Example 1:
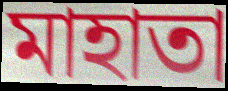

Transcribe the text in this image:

মাহাতা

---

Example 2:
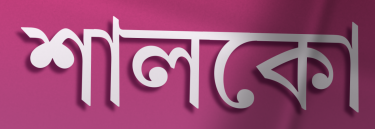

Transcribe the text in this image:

শালকো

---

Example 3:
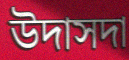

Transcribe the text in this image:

উদাসদা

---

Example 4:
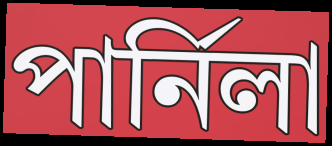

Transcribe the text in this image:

পার্নিলা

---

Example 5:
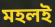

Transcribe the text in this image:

মহলই